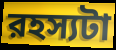
রহস্যটা